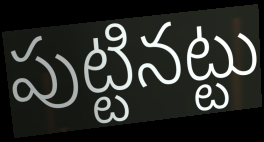
పుట్టినట్టు